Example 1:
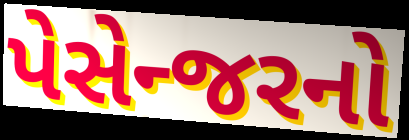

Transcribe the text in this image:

પેસેન્જરનો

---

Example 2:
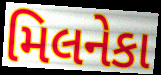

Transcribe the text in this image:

મિલનેકા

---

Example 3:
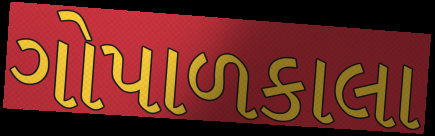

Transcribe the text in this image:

ગોપાળકાલા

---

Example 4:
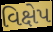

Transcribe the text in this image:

વિક્ષેપ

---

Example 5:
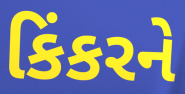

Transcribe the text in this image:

કિંકરને